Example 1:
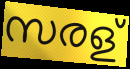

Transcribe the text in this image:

സരള്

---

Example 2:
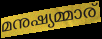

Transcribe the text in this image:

മനുഷ്യമ്മാര്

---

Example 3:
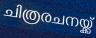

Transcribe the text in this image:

ചിത്രരചനയ്ക്ക്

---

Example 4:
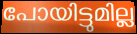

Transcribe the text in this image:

പോയിട്ടുമില്ല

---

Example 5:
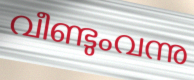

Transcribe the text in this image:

വീണ്ടുംവന്നു